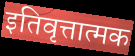
इतिवृत्तात्मक